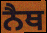
ਨੈਥ